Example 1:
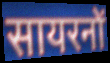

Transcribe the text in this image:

सायरनों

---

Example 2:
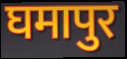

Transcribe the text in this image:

घमापुर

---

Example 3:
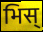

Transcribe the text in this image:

भिस्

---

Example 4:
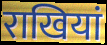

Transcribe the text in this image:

राखियां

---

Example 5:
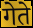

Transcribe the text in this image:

गेते